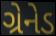
ગ્રેનેડ